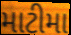
માટીમા